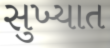
સુખ્યાત